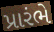
પ્રારંભે